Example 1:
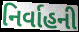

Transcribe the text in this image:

નિર્વાહની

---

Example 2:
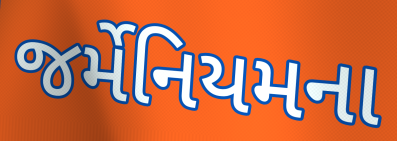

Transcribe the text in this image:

જર્મેનિયમના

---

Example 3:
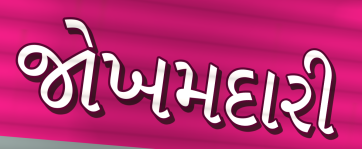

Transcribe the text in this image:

જોખમદારી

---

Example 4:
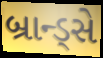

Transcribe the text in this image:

બ્રાન્ડ્સે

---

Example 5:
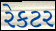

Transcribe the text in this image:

રેકટર